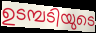
ഉടമ്പടിയുടെ